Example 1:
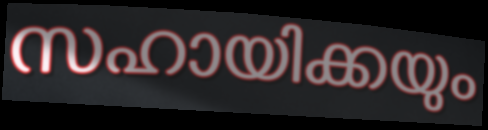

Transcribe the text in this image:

സഹായിക്കയും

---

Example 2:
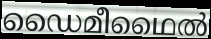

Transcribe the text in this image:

ഡൈമീഥൈൽ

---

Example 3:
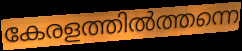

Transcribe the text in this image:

കേരളത്തിൽത്തന്നെ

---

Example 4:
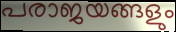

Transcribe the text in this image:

പരാജയങ്ങളും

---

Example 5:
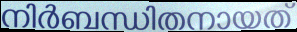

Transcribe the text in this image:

നിർബന്ധിതനായത്